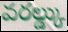
వరల్డ్కు